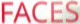
FACES